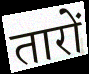
तारों